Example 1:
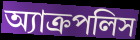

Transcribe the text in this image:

অ্যাক্রপলিস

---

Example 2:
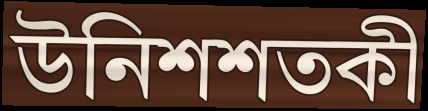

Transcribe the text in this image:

উনিশশতকী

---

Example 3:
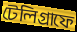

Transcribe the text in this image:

টেলিগ্রাফে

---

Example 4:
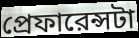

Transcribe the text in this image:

প্রেফারেন্সটা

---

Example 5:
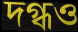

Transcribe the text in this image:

দগ্ধও